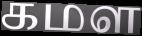
கமள